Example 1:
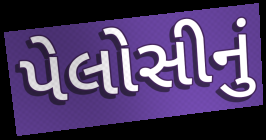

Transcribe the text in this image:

પેલોસીનું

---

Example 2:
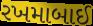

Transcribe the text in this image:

રખમાબાઈ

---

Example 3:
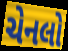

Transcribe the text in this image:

ચેનલો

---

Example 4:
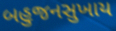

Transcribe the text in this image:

બહુજનસુખાય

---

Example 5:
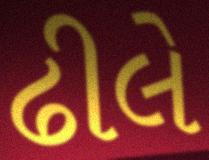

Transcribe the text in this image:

ઢીલે